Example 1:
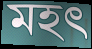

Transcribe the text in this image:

মহত্‍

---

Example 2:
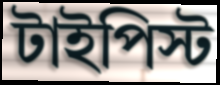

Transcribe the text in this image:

টাইপিস্ট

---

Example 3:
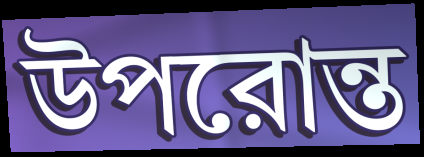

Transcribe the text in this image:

উপরোন্ত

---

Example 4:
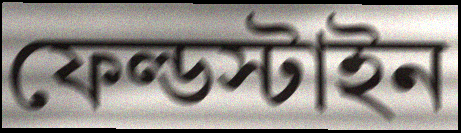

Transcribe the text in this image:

ফেল্ডস্টাইন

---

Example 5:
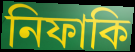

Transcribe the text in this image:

নিফাকি